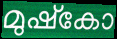
മുഷ്കോ